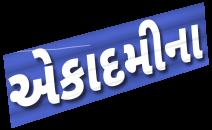
એકાદમીના